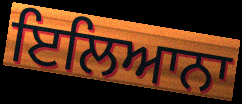
ਇਲਿਆਨਾ